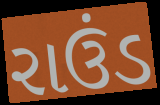
રાઉંડ